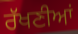
ਰੱਖਣੀਆਂ